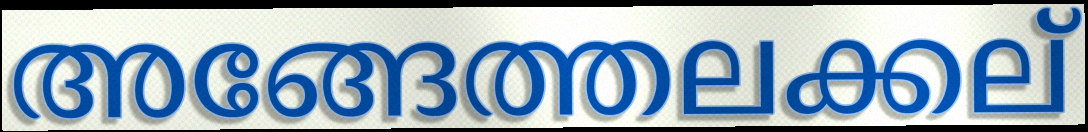
അങ്ങേത്തലക്കല്